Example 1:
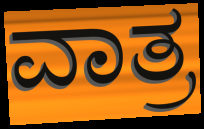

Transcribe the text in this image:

ವಾತ್ರ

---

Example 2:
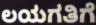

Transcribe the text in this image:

ಲಯಗತಿಗೆ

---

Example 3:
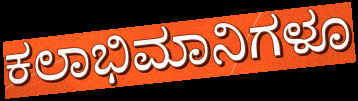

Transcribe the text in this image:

ಕಲಾಭಿಮಾನಿಗಳೂ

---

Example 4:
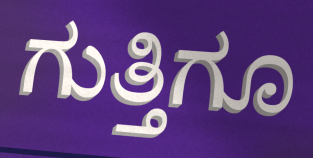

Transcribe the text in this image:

ಗುತ್ತಿಗೂ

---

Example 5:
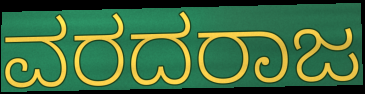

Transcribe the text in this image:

ವರದರಾಜ